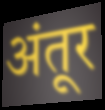
अंतूर